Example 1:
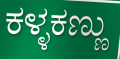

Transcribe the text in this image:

ಕಳ್ಳಕಣ್ಣು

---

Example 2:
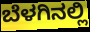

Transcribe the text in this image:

ಬೆಳಗಿನಲ್ಲಿ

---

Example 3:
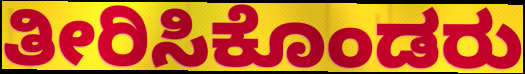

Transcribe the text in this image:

ತೀರಿಸಿಕೊಂಡರು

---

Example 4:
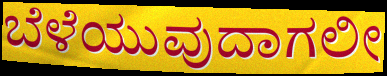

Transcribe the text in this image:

ಬೆಳೆಯುವುದಾಗಲೀ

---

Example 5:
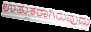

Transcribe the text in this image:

ಉತ್ಸುಕರಾಗಿರುವುದು